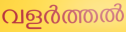
വളർത്തൽ